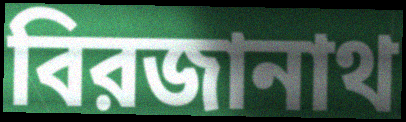
বিরজানাথ